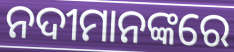
ନଦୀମାନଙ୍କରେ